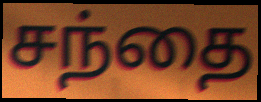
சந்தை